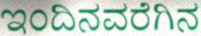
ಇಂದಿನವರೆಗಿನ